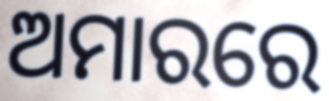
ଅମାରରେ